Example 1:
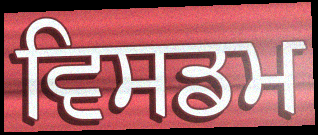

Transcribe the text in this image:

ਵਿਸਡਮ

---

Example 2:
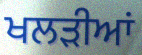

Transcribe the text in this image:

ਖਲੜੀਆਂ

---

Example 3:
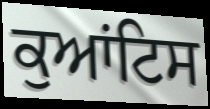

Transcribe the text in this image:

ਕੁਆਂਟਿਸ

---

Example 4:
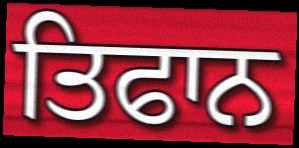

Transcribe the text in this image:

ਤਿਫਾਨ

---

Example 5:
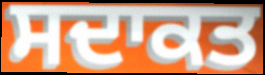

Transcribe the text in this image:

ਸਦਾਕਤ